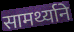
सामर्थ्याने